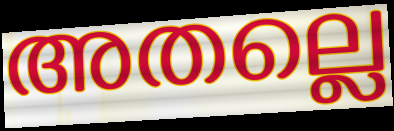
അതല്ലെ